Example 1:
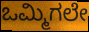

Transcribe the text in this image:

ಒಮ್ಮಿಗಲೇ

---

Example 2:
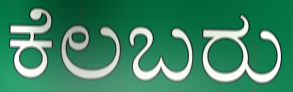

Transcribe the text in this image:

ಕೆಲಬರು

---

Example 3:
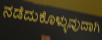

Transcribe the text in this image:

ನಡೆದುಕೊಳ್ಳುವುದಾಗಿ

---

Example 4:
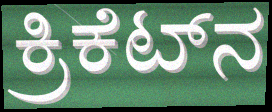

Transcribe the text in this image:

ಕ್ರಿಕೆಟ್‌ನ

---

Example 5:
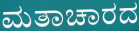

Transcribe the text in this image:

ಮತಾಚಾರದ